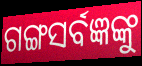
ଗଙ୍ଗସର୍ବଜ୍ଞଙ୍କୁ